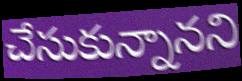
చేసుకున్నానని